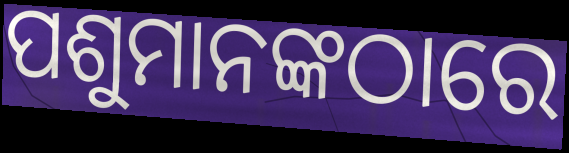
ପଶୁମାନଙ୍କଠାରେ